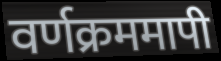
वर्णक्रममापी